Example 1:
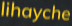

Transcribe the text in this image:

lihayche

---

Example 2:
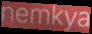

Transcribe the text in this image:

nemkya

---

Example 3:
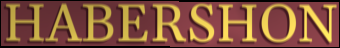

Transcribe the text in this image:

HABERSHON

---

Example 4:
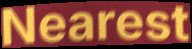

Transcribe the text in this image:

Nearest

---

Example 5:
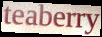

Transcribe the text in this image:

teaberry